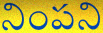
నింపని